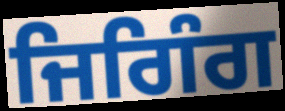
ਜਿਗਿੰਗ